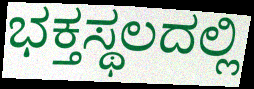
ಭಕ್ತಸ್ಥಲದಲ್ಲಿ